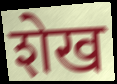
शेख